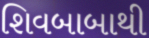
શિવબાબાથી